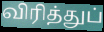
விரித்துப்